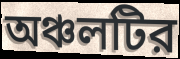
অঞ্চলটির